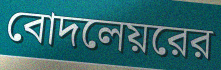
বোদলেয়রের